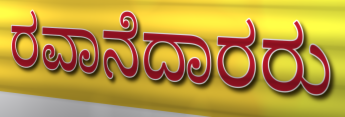
ರವಾನೆದಾರರು